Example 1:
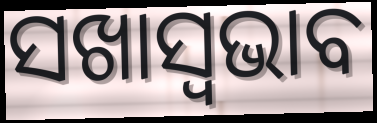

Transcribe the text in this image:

ସଖାସ୍ୱଭାବ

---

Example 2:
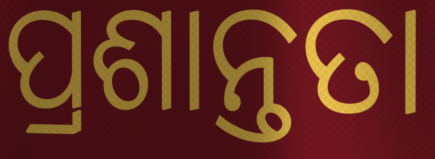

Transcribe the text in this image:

ପ୍ରଶାନ୍ତତା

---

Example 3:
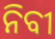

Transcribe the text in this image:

ନିବୀ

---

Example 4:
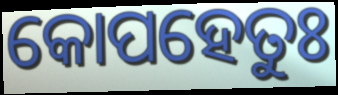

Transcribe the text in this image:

କୋପହେତୁଃ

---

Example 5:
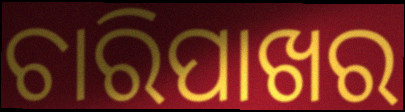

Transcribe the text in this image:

ଚାରିପାଖର